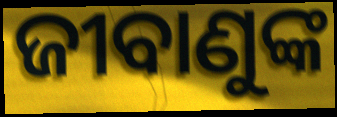
ଜୀବାଣୁଙ୍କ